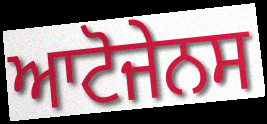
ਆਟੋਜੇਨਸ